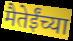
मैतेईंच्या